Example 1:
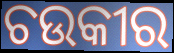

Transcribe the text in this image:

ଚଉକୀର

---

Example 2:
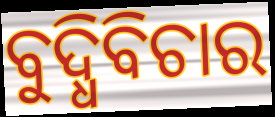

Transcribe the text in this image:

ବୁଦ୍ଧିବିଚାର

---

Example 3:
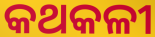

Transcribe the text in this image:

କଥକଳୀ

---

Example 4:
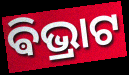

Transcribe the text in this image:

ଵିଭ୍ରାଟ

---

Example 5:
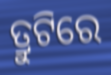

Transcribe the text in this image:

ତ୍ରୁଟିରେ